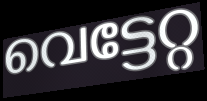
വെട്ടേറ്റ